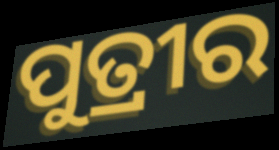
ପୁତ୍ରୀର